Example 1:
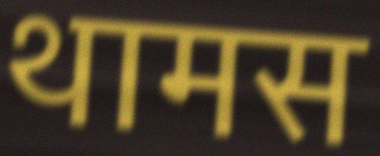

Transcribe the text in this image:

थामस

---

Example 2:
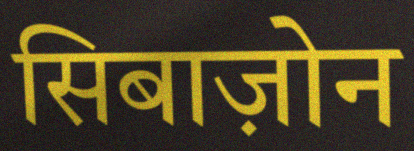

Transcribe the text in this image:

सिबाज़ोन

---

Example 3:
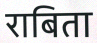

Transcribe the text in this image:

राबिता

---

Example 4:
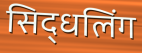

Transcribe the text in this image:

सिद्धलिंग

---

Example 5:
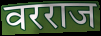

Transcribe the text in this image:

वरराज